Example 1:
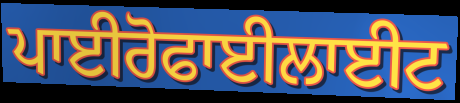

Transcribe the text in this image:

ਪਾਈਰੋਫਾਈਲਾਈਟ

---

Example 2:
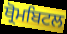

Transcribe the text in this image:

ਥ੍ਰੋਮਬਿਟਲ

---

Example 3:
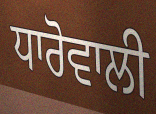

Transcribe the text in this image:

ਧਾਰੋਵਾਲੀ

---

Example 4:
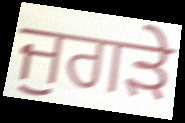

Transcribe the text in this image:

ਜੁਗੜੇ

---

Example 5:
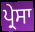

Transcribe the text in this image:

ਪ੍ਰੇਸਾ